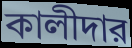
কালীদার